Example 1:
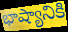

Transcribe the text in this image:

భాష్యానికి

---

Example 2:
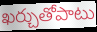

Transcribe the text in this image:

ఖర్చుతోపాటు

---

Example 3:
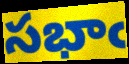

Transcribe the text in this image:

సభాఁ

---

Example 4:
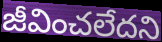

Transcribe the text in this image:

జీవించలేదని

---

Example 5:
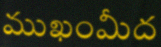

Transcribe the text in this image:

ముఖంమీద